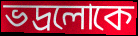
ভদ্ৰলোকে